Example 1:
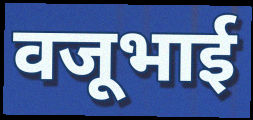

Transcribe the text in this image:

वजूभाई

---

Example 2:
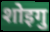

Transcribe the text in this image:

शोइगु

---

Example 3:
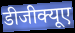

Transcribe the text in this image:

डीजीक्यूए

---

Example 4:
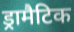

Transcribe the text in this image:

ड्रामैटिक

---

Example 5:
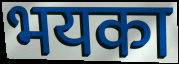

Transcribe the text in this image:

भयका